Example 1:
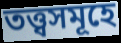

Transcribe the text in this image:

তত্ত্বসমূহে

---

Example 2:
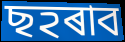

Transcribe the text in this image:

ছহৰাব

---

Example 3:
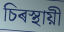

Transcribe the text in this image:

চিৰস্থায়ী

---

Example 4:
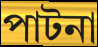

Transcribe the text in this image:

পাটনা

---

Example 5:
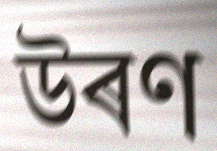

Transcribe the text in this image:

উৰণ